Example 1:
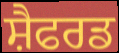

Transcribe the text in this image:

ਸ਼ੈਫਰਡ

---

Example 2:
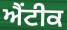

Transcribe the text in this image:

ਐਂਟੀਕ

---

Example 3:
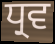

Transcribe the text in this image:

ਧ੍ਰਵ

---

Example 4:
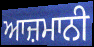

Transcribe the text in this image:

ਆਜ਼ਮਾਨੀ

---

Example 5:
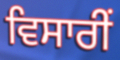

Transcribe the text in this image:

ਵਿਸਾਰੀਂ